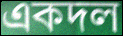
একদল